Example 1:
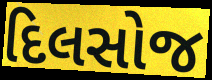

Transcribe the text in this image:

દિલસોજ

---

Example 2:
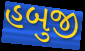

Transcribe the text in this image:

હબુજી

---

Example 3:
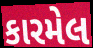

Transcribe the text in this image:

કારમેલ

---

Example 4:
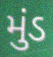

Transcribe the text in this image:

મુંડ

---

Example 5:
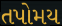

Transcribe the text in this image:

તપોમય